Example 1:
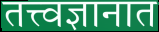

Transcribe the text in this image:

तत्त्वज्ञानात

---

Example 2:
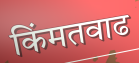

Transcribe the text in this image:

किंमतवाढ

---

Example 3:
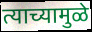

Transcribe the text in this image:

त्याच्यामुळे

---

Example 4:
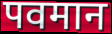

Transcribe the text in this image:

पवमान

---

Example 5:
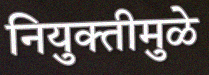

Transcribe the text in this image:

नियुक्तीमुळे